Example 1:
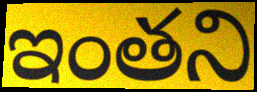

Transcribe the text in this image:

ఇంతని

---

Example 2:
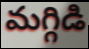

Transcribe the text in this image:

మగ్గిడి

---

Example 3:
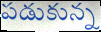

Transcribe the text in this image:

పడుకున్న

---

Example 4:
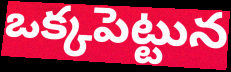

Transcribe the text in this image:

ఒక్కపెట్టున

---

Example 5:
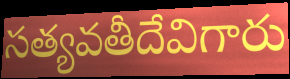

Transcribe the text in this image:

సత్యవతీదేవిగారు